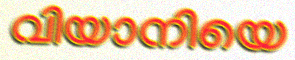
വിയാനിയെ